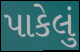
પાકેલું